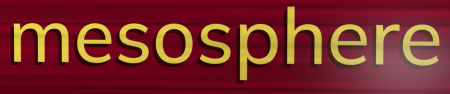
mesosphere